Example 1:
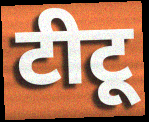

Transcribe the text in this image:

टीटू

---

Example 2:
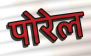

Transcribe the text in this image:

पोरेल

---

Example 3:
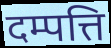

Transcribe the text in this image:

दम्पत्ति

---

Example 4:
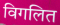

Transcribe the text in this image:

विगलित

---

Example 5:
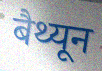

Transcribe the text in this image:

बैथ्यून